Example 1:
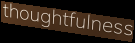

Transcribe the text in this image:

thoughtfulness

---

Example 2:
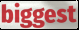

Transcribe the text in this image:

biggest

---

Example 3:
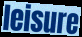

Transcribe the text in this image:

leisure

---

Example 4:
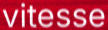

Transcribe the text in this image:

vitesse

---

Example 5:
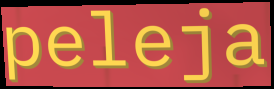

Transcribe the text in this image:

peleja